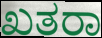
ಖತರಾ